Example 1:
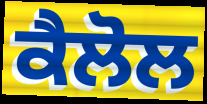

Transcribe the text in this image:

ਕੈਲੋਲ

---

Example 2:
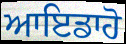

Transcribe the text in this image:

ਆਇਡਾਹੋ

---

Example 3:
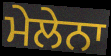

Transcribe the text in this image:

ਮੇਲੇਨਾ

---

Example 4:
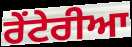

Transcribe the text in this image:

ਰੇਂਟੇਰੀਆ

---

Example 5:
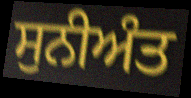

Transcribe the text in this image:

ਸੁਨੀਅੰਤ